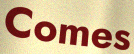
Comes